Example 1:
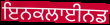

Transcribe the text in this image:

ਇਨਕਲਾਈਨਡ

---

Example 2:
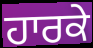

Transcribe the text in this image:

ਹਾਰਕੇ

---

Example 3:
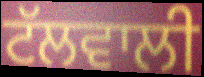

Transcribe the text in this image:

ਟੱਲਵਾਲੀ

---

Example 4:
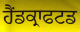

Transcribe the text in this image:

ਹੈਂਡਕ੍ਰਾਫਟਡ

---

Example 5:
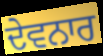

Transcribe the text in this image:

ਦੇਵਨਾਰ